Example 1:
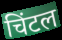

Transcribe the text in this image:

चिंटल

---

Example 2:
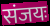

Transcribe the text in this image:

संजयः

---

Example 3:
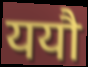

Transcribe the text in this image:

ययौ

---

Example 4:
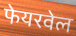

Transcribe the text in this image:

फेयरवेल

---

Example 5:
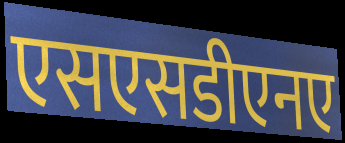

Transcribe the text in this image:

एसएसडीएनए